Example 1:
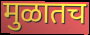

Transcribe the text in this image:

मुळातच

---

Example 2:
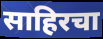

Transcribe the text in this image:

साहिरचा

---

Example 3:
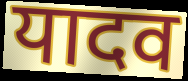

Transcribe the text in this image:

यादव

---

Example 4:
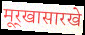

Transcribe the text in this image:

मूर्खासारखे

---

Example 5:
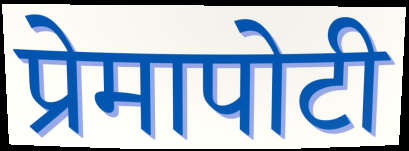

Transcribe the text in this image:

प्रेमापोटी